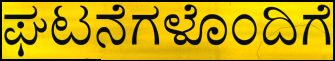
ಘಟನೆಗಳೊಂದಿಗೆ